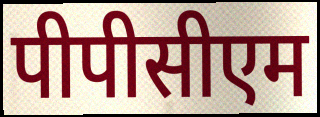
पीपीसीएम